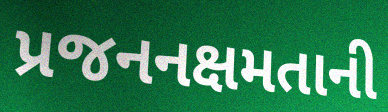
પ્રજનનક્ષમતાની